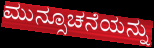
ಮುನ್ಸೂಚನೆಯನ್ನು